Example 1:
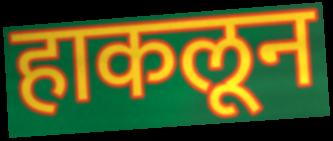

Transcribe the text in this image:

हाकलून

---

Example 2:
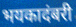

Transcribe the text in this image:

भयकादंबरी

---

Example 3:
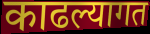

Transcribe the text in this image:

काढल्यागत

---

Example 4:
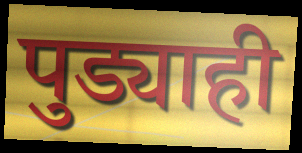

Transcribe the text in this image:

पुड्याही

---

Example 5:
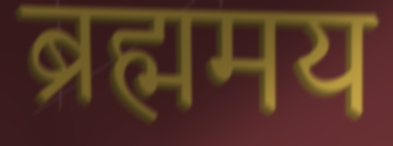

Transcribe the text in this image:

ब्रह्ममय